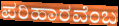
ಪರಿಹಾರವೆಂಬ